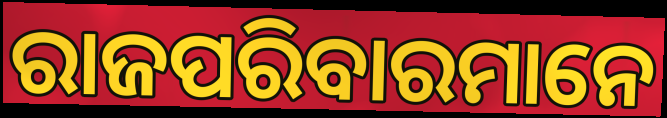
ରାଜପରିବାରମାନେ